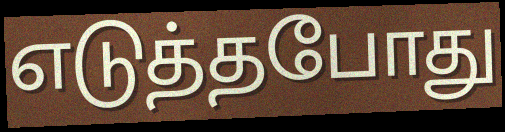
எடுத்தபோது